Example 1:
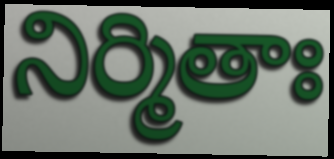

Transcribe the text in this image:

నిర్మితాః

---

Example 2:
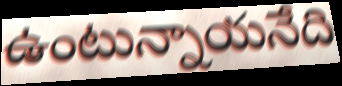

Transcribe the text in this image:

ఉంటున్నాయనేది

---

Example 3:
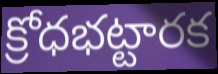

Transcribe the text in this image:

క్రోధభట్టారక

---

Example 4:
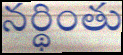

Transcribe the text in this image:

నర్థింతు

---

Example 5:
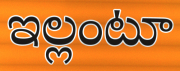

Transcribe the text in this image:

ఇల్లంటూ